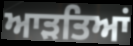
ਆੜਤਿਆਂ